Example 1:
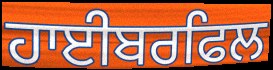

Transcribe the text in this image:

ਹਾਈਬਰਫਿਲ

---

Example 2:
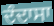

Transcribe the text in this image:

ਦੰਦਾਸਾ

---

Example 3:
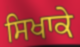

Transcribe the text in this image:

ਸਿਖਾਕੇ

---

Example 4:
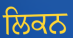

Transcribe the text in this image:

ਲਿਕਨ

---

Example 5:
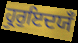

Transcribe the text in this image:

ਹ੍ਰੁਰੁਇਦਯਁ